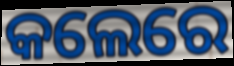
କଲେରେ